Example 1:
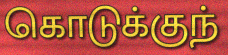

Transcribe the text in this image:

கொடுக்குந்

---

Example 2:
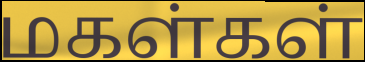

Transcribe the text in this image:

மகள்கள்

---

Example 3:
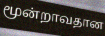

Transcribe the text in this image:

மூன்றாவதான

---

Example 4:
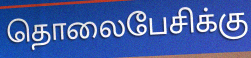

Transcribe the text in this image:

தொலைபேசிக்கு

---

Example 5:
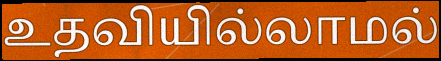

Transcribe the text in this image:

உதவியில்லாமல்